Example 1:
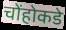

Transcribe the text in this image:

चोंहोकडे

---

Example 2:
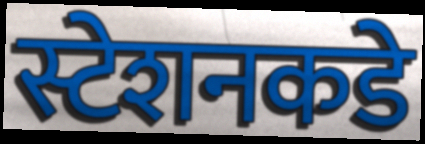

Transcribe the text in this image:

स्टेशनकडे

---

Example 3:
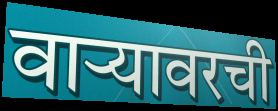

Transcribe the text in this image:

वार्‍यावरची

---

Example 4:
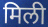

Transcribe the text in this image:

मिली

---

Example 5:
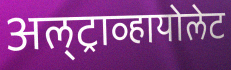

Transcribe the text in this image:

अल्ट्राव्हायोलेट